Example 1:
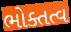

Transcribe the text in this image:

ભોક્તત્વ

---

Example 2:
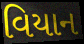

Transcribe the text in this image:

વિયાન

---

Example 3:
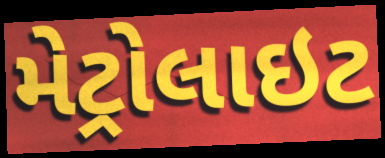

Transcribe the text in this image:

મેટ્રોલાઇટ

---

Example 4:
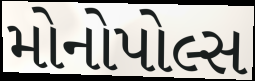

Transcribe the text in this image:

મોનોપોલ્સ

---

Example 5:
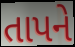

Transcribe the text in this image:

તાપને